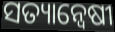
ସତ୍ୟାନ୍ଵେଷୀ